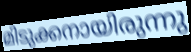
മിടുക്കനായിരുന്നു